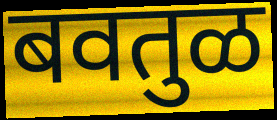
बवतुळ